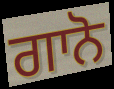
ਗਾਨੋ